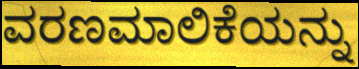
ವರಣಮಾಲಿಕೆಯನ್ನು